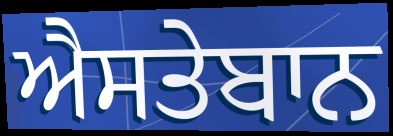
ਐਸਤੇਬਾਨ